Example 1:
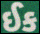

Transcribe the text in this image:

ઈક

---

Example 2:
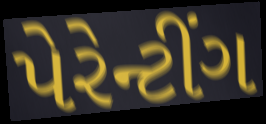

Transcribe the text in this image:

પેરેન્ટીંગ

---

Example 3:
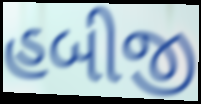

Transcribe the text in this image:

હબીજી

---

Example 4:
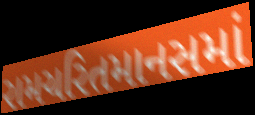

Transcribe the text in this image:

રામચરિતમાનસમાં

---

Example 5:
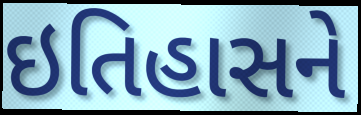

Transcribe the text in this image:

ઇતિહાસને